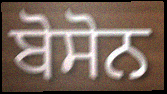
ਬੋਸੋਨ